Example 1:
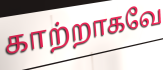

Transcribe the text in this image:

காற்றாகவே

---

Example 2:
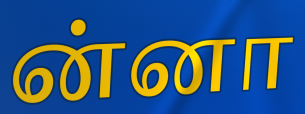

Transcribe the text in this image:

ன்னா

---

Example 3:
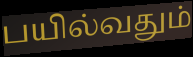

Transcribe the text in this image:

பயில்வதும்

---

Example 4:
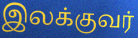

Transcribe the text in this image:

இலக்குவர்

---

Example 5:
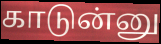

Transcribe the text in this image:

காடுன்னு